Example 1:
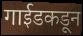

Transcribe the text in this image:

गाईडकडून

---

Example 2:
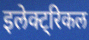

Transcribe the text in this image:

इलेक्ट्रिकल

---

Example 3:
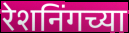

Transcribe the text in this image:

रेशनिंगच्या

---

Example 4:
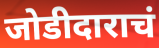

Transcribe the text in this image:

जोडीदाराचं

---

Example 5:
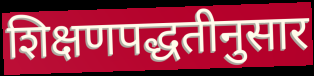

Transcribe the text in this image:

शिक्षणपद्धतीनुसार